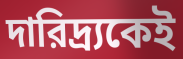
দারিদ্র্যকেই